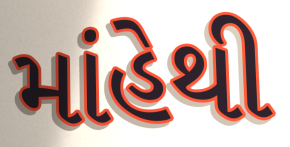
માંહેથી